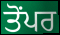
ਤੋਂਪਰ